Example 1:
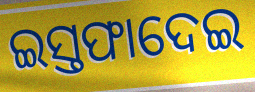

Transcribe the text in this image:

ଇସ୍ତଫାଦେଇ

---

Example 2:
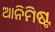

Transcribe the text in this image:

ଆନିମିଷ୍ଟ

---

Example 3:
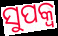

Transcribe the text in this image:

ସୁପକ୍ବ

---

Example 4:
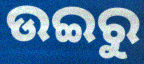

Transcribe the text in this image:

ଉଇରୁ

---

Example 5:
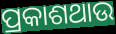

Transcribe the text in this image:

ପ୍ରକାଶଥାଉ